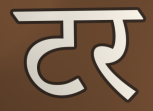
टर